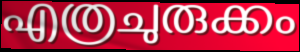
എത്രചുരുക്കം